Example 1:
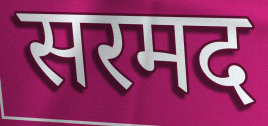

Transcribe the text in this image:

सरमद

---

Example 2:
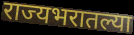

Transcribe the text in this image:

राज्यभरातल्या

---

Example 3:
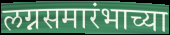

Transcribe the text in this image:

लग्नसमारंभाच्या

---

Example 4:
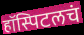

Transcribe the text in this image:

हॉस्पिटलचं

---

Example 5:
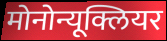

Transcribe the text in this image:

मोनोन्यूक्लियर